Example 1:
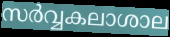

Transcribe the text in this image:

സർവ്വകലാശാല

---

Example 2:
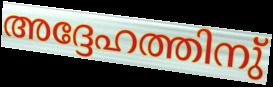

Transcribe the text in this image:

അദ്ദേഹത്തിനു്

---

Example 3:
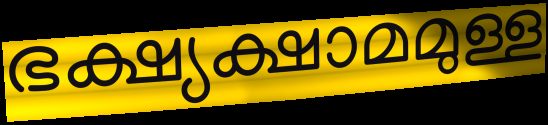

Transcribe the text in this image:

ഭക്ഷ്യക്ഷാമമുള്ള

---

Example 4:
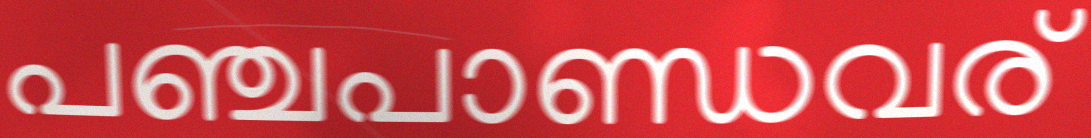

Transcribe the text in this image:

പഞ്ചപാണ്ഡവര്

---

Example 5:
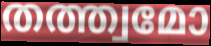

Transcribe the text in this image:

തത്ത്വമോ